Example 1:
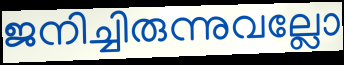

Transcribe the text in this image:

ജനിച്ചിരുന്നുവല്ലോ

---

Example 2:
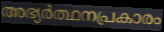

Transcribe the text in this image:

അഭ്യർത്ഥനപ്രകാരം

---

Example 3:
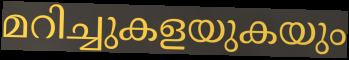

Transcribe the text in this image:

മറിച്ചുകളയുകയും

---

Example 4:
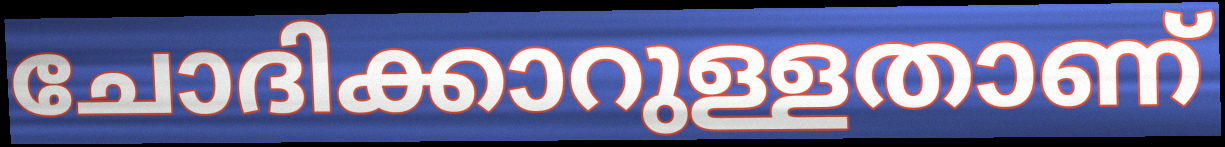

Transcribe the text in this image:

ചോദിക്കാറുള്ളതാണ്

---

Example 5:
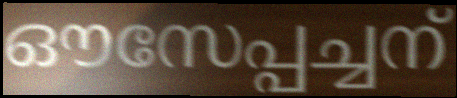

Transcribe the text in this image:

ഔസേപ്പച്ചന്